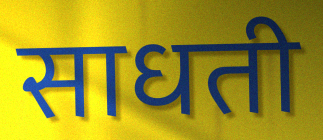
साधती